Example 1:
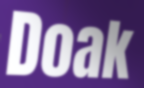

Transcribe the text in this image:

Doak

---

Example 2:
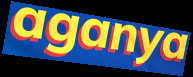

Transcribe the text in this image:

aganya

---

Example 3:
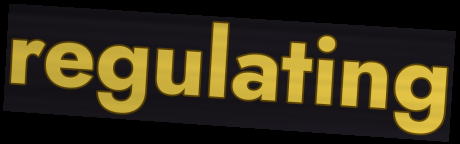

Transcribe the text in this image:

regulating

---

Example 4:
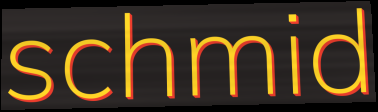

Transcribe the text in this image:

schmid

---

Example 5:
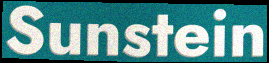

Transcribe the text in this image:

Sunstein